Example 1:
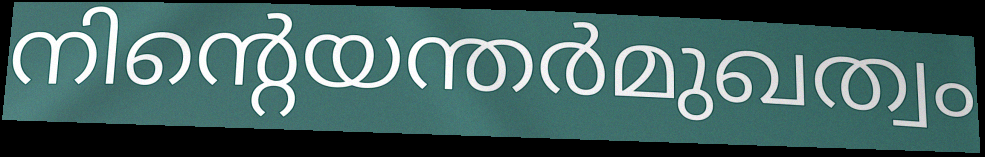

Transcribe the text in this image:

നിന്റെയന്തർമുഖത്വം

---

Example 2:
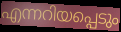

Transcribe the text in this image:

എന്നറിയപ്പെടും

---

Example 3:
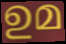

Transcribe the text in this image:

ഉമ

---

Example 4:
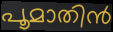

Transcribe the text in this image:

പൂമാതിൻ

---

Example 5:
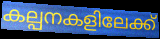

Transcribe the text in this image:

കല്പനകളിലേക്ക്